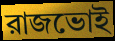
রাজভোই